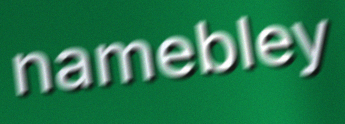
namebley